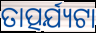
ତାତ୍ପର୍ଯ୍ୟଟା